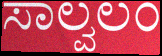
ಸಾಲ್ವಲಂ